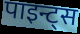
पाइन्ट्स